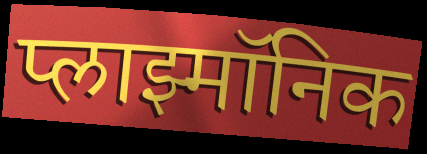
प्लाझ्मॉनिक